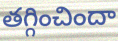
తగ్గించిందా